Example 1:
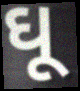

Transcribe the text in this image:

ઘૂ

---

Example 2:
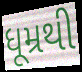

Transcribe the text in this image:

ધૂમ્રથી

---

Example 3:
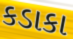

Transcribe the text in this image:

કડાકા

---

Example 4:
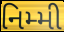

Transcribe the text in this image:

નિમ્મી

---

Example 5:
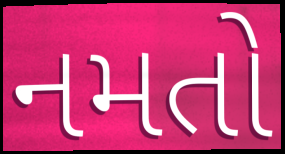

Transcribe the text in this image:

નમતો